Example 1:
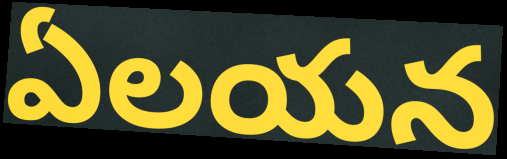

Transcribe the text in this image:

ఏలయన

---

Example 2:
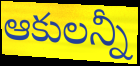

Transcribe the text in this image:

ఆకులన్నీ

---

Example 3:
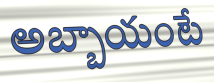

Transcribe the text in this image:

అబ్బాయంటే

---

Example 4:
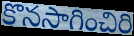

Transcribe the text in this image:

కొనసాగించిరి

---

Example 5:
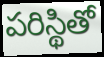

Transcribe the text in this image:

పరిస్థితో